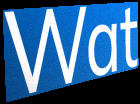
Wat